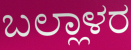
ಬಲ್ಲಾಳರ